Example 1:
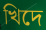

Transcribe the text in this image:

খিদে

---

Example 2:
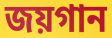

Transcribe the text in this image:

জয়গান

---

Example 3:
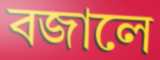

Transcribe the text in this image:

বজালে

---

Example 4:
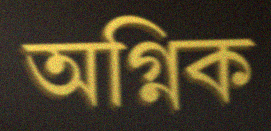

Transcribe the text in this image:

অগ্নিক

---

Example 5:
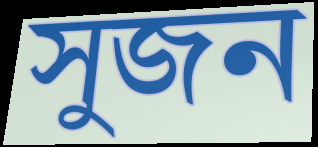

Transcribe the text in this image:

সুজন